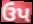
ઉપ